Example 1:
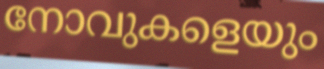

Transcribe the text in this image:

നോവുകളെയും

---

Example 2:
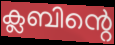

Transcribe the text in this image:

ക്ലബിന്റെ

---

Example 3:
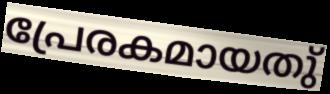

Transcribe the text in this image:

പ്രേരകമായതു്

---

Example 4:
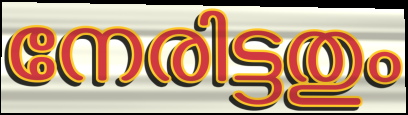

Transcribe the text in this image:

നേരിട്ടതും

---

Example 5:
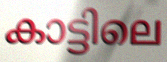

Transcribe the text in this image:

കാട്ടിലെ